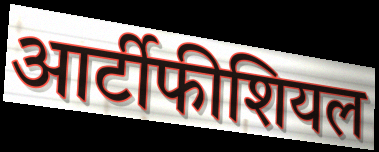
आर्टीफीशियल